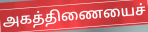
அகத்திணையைச்